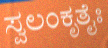
ಸ್ವಲಂಕೃತೈಃ